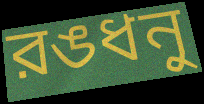
রঙধনু